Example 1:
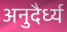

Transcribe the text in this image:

अनुदैर्ध्य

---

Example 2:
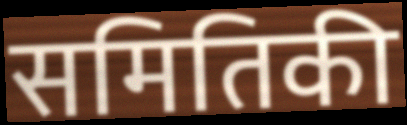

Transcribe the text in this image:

समितिकी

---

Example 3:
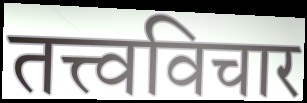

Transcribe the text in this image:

तत्त्वविचार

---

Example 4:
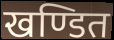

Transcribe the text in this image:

खण्डित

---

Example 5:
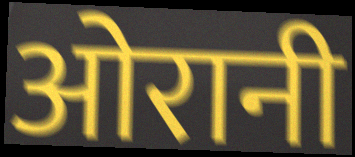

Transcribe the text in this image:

ओरानी